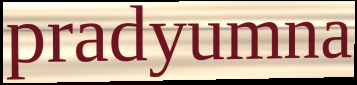
pradyumna